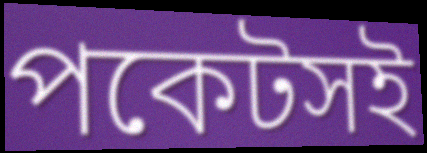
পকেটসই